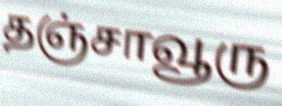
தஞ்சாவூரு